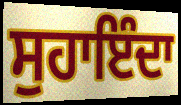
ਸੁਹਾਇੰਦਾ